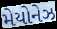
મેયોનેઝ